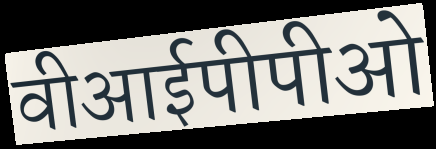
वीआईपीपीओ